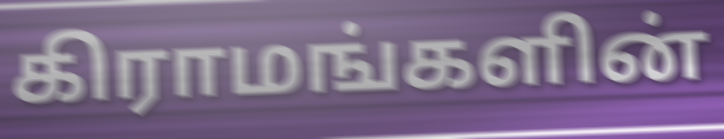
கிராமங்களின்